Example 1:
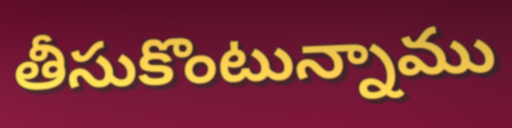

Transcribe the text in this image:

తీసుకొంటున్నాము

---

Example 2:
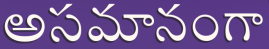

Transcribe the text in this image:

అసమానంగా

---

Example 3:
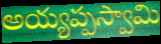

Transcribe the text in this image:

అయ్యప్పస్వామి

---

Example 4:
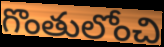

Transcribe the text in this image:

గొంతులోంచి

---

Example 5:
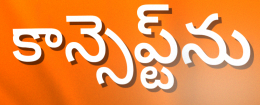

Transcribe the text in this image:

కాన్సెప్ట్‌ను